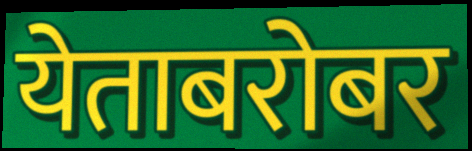
येताबरोबर